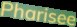
Pharisee